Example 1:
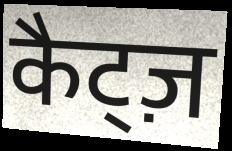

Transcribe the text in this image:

कैट्ज़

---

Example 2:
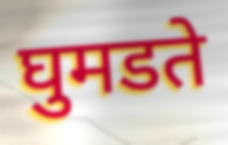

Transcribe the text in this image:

घुमडते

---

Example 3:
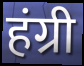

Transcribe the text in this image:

हंग्री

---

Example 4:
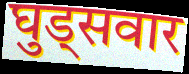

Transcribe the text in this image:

घुड्सवार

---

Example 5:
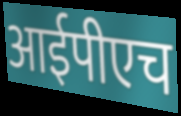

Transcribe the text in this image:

आईपीएच